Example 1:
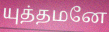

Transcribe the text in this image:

யுத்தமனே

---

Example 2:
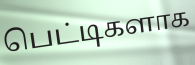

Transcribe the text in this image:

பெட்டிகளாக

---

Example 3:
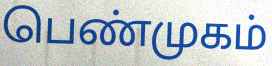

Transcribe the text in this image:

பெண்முகம்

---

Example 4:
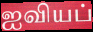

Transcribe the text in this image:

ஐவியப்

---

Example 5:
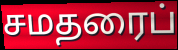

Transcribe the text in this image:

சமதரைப்